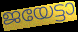
ജയേട്ടാ